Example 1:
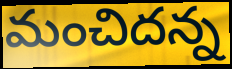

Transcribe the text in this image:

మంచిదన్న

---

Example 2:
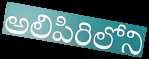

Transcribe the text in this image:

అలిపిరిలోని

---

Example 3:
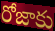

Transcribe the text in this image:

రోజాకు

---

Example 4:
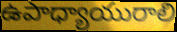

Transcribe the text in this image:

ఉపాధ్యాయురాలి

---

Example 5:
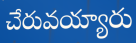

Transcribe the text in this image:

చేరువయ్యారు